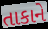
તાકાને